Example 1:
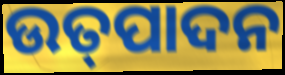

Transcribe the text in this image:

ଉତ୍‍ପାଦନ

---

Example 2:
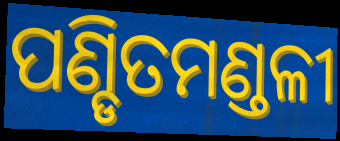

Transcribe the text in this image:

ପଣ୍ଡିତମଣ୍ଡଳୀ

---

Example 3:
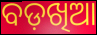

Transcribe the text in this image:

ବଡ଼ଖିଆ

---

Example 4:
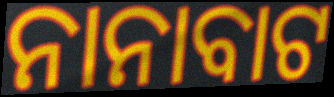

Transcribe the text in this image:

ନାନାବାଟ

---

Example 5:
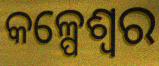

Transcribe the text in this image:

କଳ୍ପେଶ୍ୱର